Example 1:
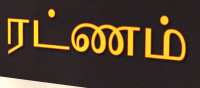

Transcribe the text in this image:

ரட்ணம்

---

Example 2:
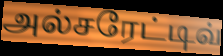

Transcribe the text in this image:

அல்சரேட்டிவ்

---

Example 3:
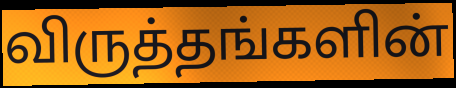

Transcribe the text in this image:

விருத்தங்களின்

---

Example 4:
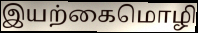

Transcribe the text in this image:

இயற்கைமொழி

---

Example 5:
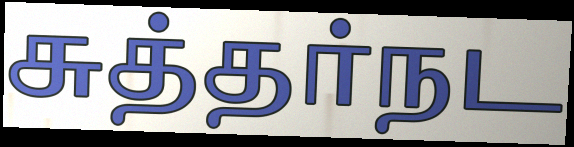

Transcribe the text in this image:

சுத்தர்நட